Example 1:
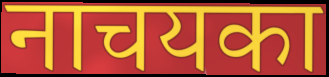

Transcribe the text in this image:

नाचयका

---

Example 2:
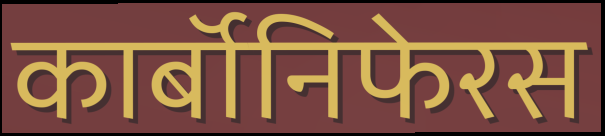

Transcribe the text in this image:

कार्बॉनिफेरस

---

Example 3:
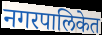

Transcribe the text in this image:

नगरपालिकेत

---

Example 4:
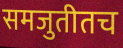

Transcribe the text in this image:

समजुतीतच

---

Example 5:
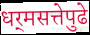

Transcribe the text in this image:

धर्मसत्तेपुढे